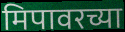
मिपावरच्या